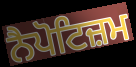
ਨੈਪੋਟਿਜ਼ਮ